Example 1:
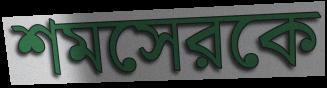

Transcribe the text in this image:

শমসেরকে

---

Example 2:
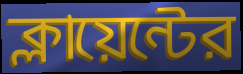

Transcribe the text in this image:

ক্লায়েন্টের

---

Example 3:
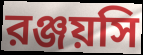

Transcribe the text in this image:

রঞ্জয়সি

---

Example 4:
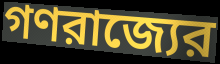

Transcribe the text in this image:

গণরাজ্যের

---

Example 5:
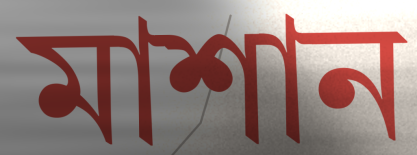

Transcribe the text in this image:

মাশান